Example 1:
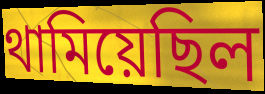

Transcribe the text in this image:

থামিয়েছিল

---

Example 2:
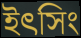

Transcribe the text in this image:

ইৎসিং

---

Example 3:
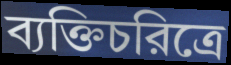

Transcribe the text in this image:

ব্যক্তিচরিত্রে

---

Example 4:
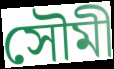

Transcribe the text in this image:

সৌমী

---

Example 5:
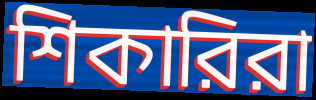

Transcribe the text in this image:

শিকারিরা